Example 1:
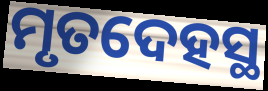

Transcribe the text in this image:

ମୃତଦେହସ୍ଥ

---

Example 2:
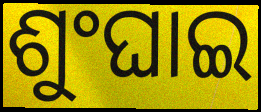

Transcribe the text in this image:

ଶୁଂଘାଇ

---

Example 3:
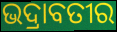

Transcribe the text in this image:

ଭଦ୍ରାବତୀର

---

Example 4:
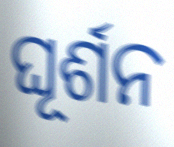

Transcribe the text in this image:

ଘୂର୍ଶନ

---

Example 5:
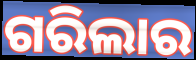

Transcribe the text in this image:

ଗରିଲାର